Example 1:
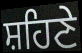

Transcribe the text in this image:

ਸ਼ਹਿਣੇ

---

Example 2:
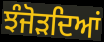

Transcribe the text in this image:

ਝੰਜੋੜਦਿਆਂ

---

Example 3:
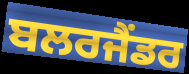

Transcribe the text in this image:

ਬਲਰਜੈਂਡਰ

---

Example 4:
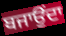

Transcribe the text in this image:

ਬਜਾਉਂਦਾ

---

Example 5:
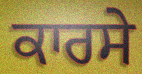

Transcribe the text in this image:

ਕਾਰਸੇ